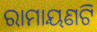
ରାମାୟଣଟି